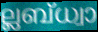
ല്ലബ്ധ്വാ